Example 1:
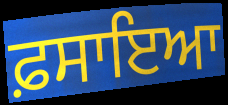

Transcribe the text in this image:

ਫ਼ਸਾਇਆ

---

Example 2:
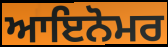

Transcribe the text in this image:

ਆਇਨੋਮਰ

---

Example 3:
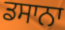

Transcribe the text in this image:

ਡਸਾਨਾ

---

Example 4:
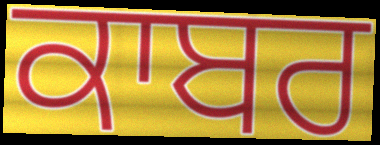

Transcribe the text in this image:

ਕਾਬਰ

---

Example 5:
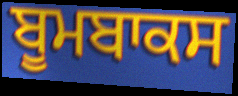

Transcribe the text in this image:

ਬੂਮਬਾਕਸ